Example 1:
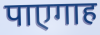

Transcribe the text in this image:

पाएगाह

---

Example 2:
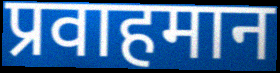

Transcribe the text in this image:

प्रवाहमान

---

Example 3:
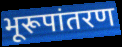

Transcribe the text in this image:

भूरूपांतरण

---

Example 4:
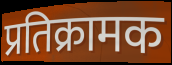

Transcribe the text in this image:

प्रतिक्रामक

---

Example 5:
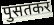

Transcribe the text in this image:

पुसतकर